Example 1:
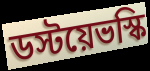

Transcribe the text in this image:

ডস্টয়েভস্কি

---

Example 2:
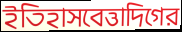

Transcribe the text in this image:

ইতিহাসবেত্তাদিগের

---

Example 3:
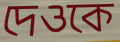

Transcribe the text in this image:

দেওকে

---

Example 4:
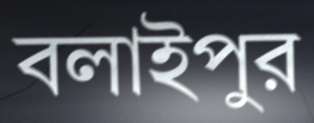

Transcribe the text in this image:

বলাইপুর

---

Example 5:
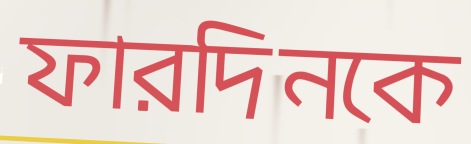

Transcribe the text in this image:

ফারদিনকে